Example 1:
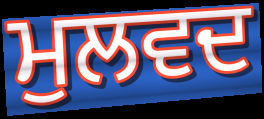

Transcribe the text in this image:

ਮੁਲਵਦ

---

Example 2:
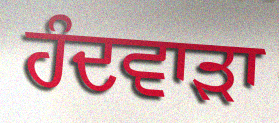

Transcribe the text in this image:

ਹੰਦਵਾੜਾ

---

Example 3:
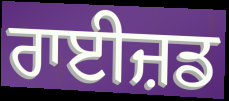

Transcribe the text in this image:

ਰਾਈਜ਼ਡ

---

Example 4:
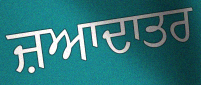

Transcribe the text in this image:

ਜ਼ਆਦਾਤਰ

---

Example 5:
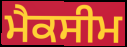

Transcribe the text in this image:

ਮੈਕਸੀਮ